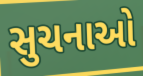
સુચનાઓ